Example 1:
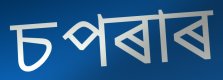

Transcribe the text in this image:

চপৰাৰ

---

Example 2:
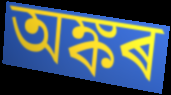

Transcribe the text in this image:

অঙ্কৰ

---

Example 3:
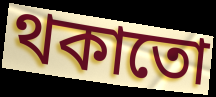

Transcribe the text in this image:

থকাতো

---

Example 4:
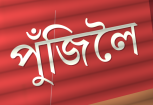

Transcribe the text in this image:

পুঁজিলৈ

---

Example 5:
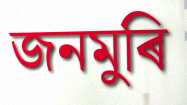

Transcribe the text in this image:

জনমুৰি